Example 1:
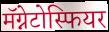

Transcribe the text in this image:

मॅग्नेटोस्फियर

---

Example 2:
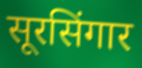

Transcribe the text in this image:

सूरसिंगार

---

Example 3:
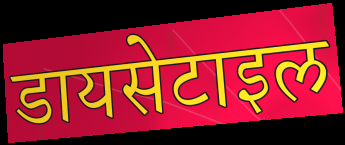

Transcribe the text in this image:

डायसेटाइल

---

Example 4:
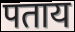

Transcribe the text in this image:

पताय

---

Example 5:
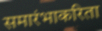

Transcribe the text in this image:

समारंभाकरिता